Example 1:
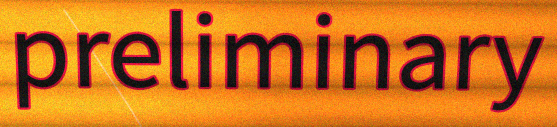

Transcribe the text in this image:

preliminary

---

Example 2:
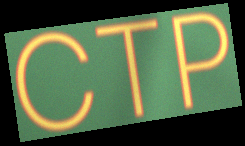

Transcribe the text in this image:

CTP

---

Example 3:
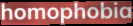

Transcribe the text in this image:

homophobia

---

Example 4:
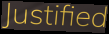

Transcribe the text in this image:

Justified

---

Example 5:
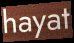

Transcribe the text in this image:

hayat